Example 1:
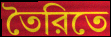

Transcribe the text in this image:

তৈরিতে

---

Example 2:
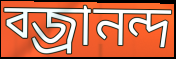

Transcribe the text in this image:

ব্জ্রানন্দ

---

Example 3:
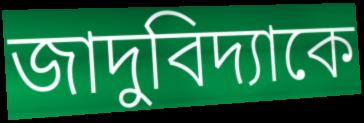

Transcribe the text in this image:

জাদুবিদ্যাকে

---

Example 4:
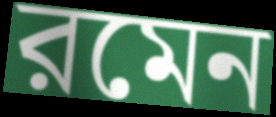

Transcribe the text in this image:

রমেন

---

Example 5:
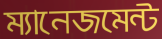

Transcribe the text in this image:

ম্যানেজমেন্ট